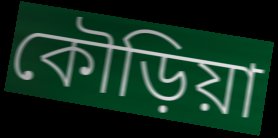
কৌড়িয়া